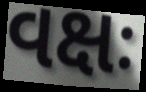
વક્ષઃ